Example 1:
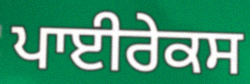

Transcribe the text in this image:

ਪਾਈਰੇਕਸ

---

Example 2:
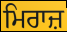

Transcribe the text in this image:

ਮਿਰਾਜ਼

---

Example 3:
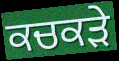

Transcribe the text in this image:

ਕਚਕੜੇ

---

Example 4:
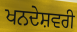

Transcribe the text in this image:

ਖਨਦੇਸ਼ਵਰੀ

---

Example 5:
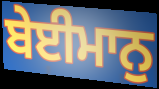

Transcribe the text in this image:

ਬੇਈਮਾਨੁ